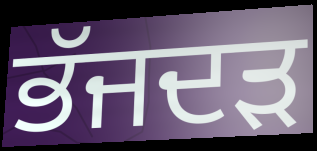
ਭੱਜਦੜ